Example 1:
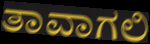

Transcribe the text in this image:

ತಾವಾಗಲಿ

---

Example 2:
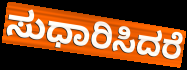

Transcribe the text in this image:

ಸುಧಾರಿಸಿದರೆ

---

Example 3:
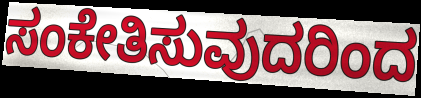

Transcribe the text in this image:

ಸಂಕೇತಿಸುವುದರಿಂದ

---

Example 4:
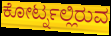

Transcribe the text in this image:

ಕೋರ್ಟ್ನಲ್ಲಿರುವ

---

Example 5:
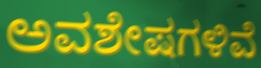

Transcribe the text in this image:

ಅವಶೇಷಗಳಿವೆ